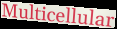
Multicellular